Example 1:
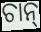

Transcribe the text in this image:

ଚାନ୍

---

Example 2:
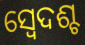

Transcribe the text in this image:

ସ୍ବେଦଶ୍ଚ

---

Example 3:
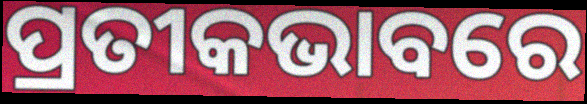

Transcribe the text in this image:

ପ୍ରତୀକଭାବରେ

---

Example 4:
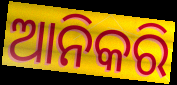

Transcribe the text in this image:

ଆନିକରି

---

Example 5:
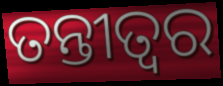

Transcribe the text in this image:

ତନ୍ତୀତ୍ୱର